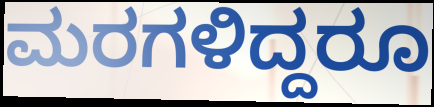
ಮರಗಳಿದ್ದರೂ